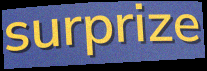
surprize